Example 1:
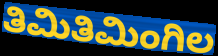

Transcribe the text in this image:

ತಿಮಿತಿಮಿಂಗಿಲ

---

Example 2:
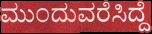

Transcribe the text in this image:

ಮುಂದುವರೆಸಿದ್ದೆ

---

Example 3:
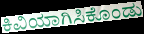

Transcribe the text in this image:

ಕಿವಿಯಾಗಿಸಿಕೊಂಡು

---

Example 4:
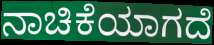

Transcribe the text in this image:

ನಾಚಿಕೆಯಾಗದೆ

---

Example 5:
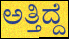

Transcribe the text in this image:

ಅತ್ತಿದ್ದೆ